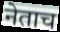
नेताच